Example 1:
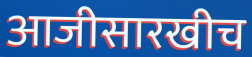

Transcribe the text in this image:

आजीसारखीच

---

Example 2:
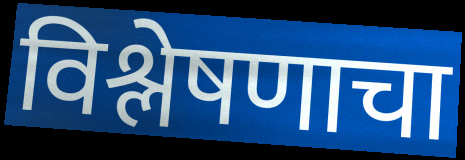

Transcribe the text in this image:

विश्लेषणाचा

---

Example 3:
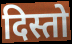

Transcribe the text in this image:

दिस्तो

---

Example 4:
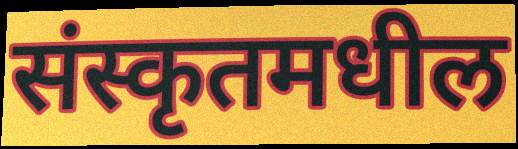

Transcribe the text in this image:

संस्कृतमधील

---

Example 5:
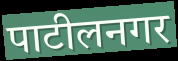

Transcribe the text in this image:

पाटीलनगर